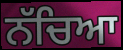
ਨੱਚਿਆ